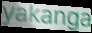
yakanga